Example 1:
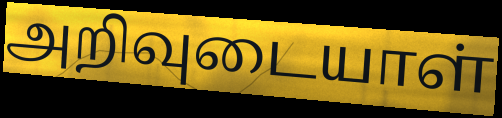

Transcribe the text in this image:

அறிவுடையாள்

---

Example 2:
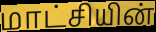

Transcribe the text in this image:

மாட்சியின்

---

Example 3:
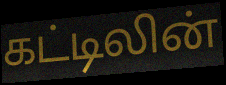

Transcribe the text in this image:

கட்டிலின்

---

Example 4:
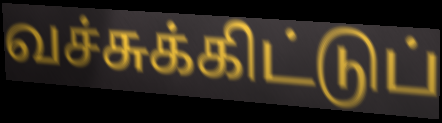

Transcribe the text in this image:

வச்சுக்கிட்டுப்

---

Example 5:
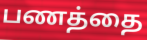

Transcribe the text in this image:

பணத்தை